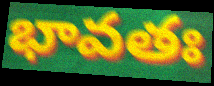
భావతః